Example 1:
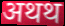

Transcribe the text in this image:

अथथ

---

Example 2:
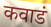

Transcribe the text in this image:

कवाडं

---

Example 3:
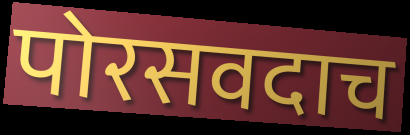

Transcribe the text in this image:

पोरसवदाच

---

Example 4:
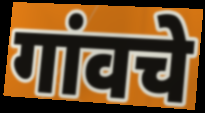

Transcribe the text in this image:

गांवचे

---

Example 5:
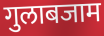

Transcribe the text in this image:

गुलाबजाम